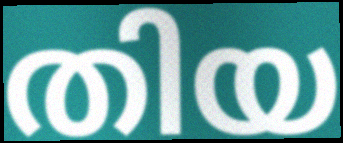
തിയ